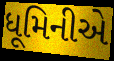
ધૂમિનીએ